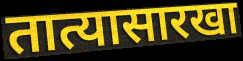
तात्यासारखा